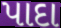
પાદા